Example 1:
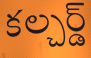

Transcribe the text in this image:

కల్చర్డ్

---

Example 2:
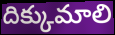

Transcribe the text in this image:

దిక్కుమాలి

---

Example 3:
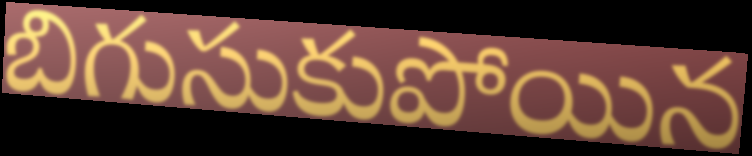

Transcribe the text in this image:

బిగుసుకుపోయిన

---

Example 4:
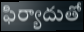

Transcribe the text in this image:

ఫిర్యాదుతో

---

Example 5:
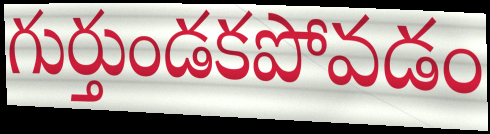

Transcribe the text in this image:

గుర్తుండకపోవడం